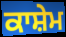
ਕਾਸ਼ੇਮ